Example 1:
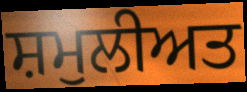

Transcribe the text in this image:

ਸ਼ਮੁਲੀਅਤ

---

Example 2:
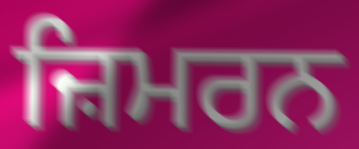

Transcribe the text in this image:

ਜ਼ਿਮਰਨ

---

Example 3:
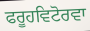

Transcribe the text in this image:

ਫਰੂਹਵਿਟੋਰਵਾ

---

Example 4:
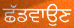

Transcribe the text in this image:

ਛੱਡਵਾਉਣ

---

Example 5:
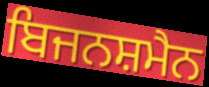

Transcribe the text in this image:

ਬਿਜਨਸ਼ਮੈਨ